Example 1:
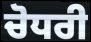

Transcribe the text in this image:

ਚੋਧਰੀ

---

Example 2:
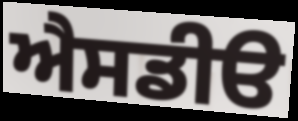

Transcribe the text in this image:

ਐਸਡੀੳ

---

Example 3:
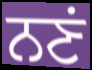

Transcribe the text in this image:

ਨਣਂ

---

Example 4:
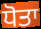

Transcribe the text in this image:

ਧੋਤਾ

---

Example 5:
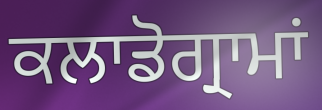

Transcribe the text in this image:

ਕਲਾਡੋਗ੍ਰਾਮਾਂ